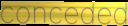
conceded